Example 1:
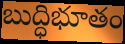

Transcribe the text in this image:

బుద్ధిభూతం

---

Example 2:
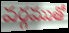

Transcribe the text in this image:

వర్గముతో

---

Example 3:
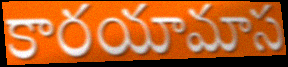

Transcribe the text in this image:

కారయామాస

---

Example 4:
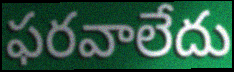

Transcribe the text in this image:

ఫరవాలేదు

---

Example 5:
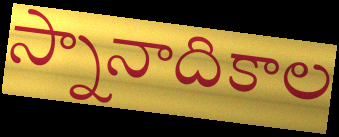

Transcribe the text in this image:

స్నానాదికాల